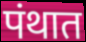
पंथात